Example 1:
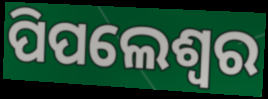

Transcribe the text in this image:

ପିପଲେଶ୍ୱର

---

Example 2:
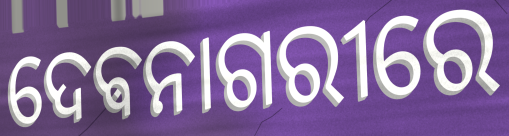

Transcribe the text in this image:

ଦେଵନାଗରୀରେ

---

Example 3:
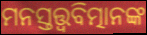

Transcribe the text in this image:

ମନସ୍ତତ୍ତ୍ବବିତ୍ମାନଙ୍କ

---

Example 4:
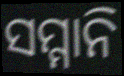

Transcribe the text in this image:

ସମ୍ମାନି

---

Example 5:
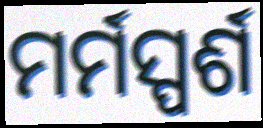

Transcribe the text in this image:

ମର୍ମସ୍ପର୍ଶ